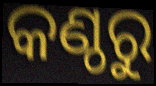
କଣ୍ଠରୁ